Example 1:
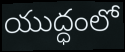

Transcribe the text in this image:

యుద్ధంలో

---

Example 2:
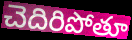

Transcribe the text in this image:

చెదిరిపోతూ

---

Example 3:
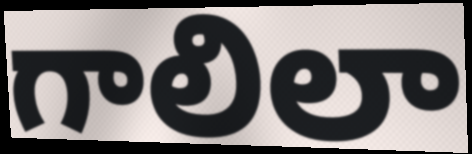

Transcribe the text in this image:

గాలిలా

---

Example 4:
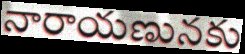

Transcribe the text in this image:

నారాయణునకు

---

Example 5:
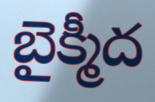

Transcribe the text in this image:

బైక్మీద